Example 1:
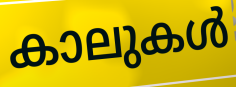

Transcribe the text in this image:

കാലുകൾ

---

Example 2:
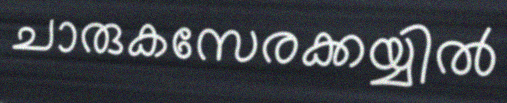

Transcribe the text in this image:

ചാരുകസേരക്കയ്യിൽ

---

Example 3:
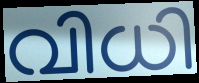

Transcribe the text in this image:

വിധി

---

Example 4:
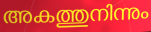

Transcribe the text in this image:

അകത്തുനിന്നും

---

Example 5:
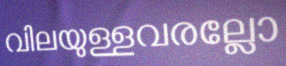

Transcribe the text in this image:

വിലയുള്ളവരല്ലോ